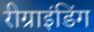
रीग्राइंडिंग